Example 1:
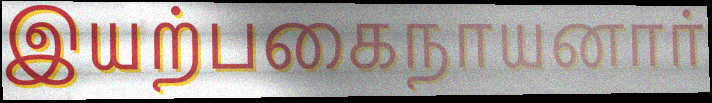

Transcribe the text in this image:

இயற்பகைநாயனார்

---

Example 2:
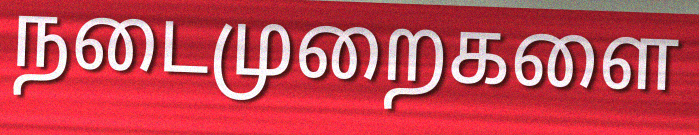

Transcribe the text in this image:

நடைமுறைகளை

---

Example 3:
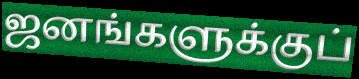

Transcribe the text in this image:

ஜனங்களுக்குப்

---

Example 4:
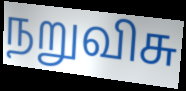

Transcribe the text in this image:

நறுவிசு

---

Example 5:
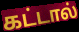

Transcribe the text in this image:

கட்டால்